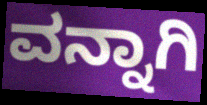
ವನ್ನಾಗಿ